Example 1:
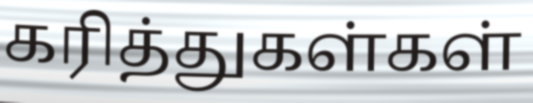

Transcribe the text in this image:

கரித்துகள்கள்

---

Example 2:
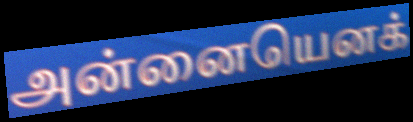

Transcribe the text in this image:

அன்னையெனக்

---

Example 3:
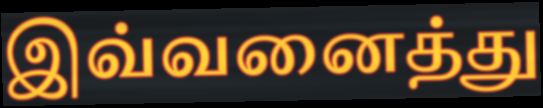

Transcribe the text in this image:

இவ்வனைத்து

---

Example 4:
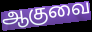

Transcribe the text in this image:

ஆகுவை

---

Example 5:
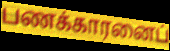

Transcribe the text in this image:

பணக்காரனைப்